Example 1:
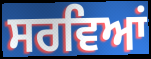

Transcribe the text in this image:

ਸਰਵਿਆਂ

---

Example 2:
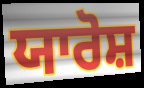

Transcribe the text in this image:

ਯਾਰੋਸ਼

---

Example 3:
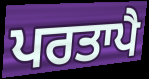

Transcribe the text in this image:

ਪਰਤਾਪੈ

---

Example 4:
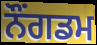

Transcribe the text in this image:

ਨੌਂਗਡਮ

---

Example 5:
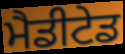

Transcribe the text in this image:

ਮੈਡੀਟੇਡ